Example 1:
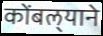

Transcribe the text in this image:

कोंबल्याने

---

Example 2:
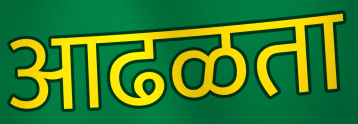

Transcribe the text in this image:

आढळता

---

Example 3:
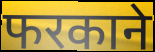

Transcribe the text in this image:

फरकाने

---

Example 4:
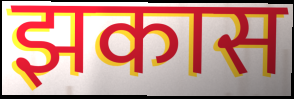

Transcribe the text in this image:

झकास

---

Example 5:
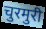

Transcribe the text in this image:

चुरमुरी